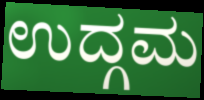
ಉದ್ಗಮ